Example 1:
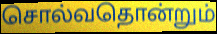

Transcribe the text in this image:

சொல்வதொன்றும்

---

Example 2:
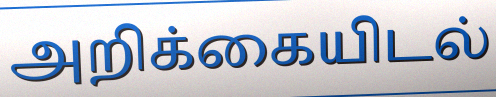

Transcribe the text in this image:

அறிக்கையிடல்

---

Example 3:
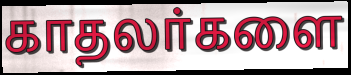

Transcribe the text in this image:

காதலர்களை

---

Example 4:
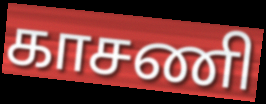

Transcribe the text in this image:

காசணி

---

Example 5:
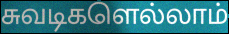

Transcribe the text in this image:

சுவடிகளெல்லாம்